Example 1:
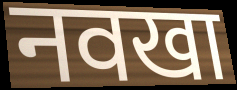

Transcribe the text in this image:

नवखा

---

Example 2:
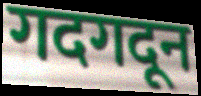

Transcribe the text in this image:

गदगदून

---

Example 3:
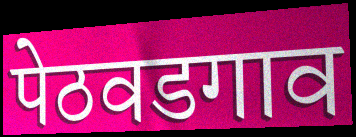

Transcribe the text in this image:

पेठवडगाव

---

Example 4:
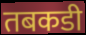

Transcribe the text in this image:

तबकडी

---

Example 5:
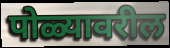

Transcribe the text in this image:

पोळ्यावरील